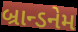
બ્રાન્ડનેમ